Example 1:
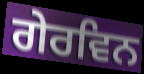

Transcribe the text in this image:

ਗੇਰਵਿਨ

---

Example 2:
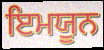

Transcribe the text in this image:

ਇਮਯੂਨ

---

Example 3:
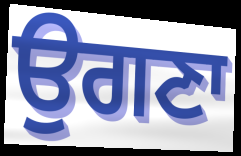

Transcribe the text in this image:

ਉਗਣਾ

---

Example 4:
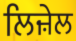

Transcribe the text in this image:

ਲਿਜ਼ੇਲ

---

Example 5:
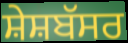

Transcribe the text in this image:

ਸ਼ੇਸ਼ਬੱਸਰ